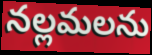
నల్లమలను